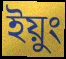
ইয়ুং